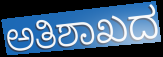
ಅತಿಶಾಖದ